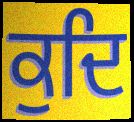
ਕੁਦਿ